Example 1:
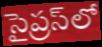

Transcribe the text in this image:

సైప్రస్‌లో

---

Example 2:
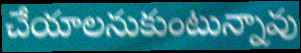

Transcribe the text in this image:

చేయాలనుకుంటున్నావు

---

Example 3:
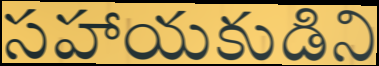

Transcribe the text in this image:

సహాయకుడిని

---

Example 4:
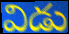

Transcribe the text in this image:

విడు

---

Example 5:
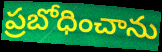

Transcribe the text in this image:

ప్రబోధించాను